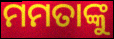
ମମତାଙ୍କୁ